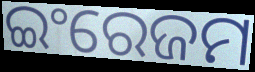
ଇଂରେଜମ